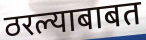
ठरल्याबाबत